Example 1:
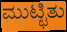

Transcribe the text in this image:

ಮುಟ್ಟಿತು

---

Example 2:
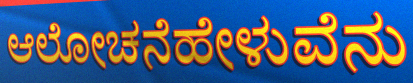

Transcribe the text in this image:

ಆಲೋಚನೆಹೇಳುವೆನು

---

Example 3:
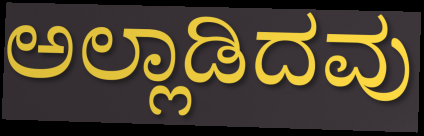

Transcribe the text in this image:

ಅಲ್ಲಾಡಿದವು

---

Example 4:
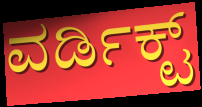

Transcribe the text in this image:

ವರ್ಡಿಕ್ಟ್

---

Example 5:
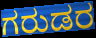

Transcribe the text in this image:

ಗರುಡರ